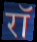
रॉ